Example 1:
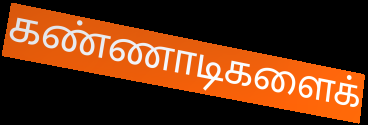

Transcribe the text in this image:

கண்ணாடிகளைக்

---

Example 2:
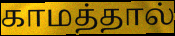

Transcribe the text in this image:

காமத்தால்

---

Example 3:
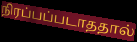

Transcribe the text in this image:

நிரப்பப்படாததால்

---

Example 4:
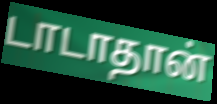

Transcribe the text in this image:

டாடாதான்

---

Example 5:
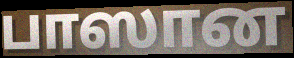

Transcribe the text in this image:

பாஸான